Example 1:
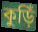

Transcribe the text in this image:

কুড়িঁ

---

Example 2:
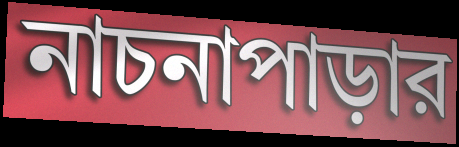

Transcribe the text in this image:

নাচনাপাড়ার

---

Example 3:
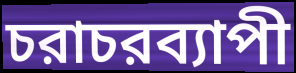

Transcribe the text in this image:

চরাচরব্যাপী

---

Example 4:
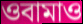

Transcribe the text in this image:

ওবামাও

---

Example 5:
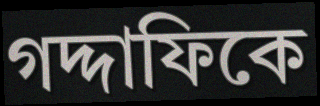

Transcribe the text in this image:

গদ্দাফিকে